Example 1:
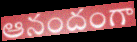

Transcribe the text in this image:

ఆనందంగా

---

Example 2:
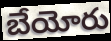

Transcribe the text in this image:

బేయోరు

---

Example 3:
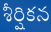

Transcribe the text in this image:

శీర్షికన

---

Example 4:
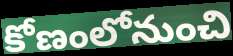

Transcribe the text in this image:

కోణంలోనుంచి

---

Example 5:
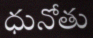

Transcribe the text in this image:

ధునోతు